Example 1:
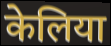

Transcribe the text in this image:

केलिया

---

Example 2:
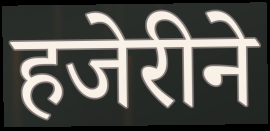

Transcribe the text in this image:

हजेरीने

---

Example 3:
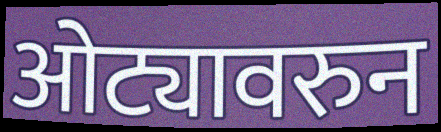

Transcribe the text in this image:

ओट्यावरुन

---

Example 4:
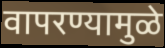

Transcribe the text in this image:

वापरण्यामुळे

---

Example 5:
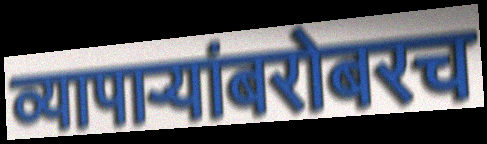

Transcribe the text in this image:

व्यापाऱ्यांबरोबरच